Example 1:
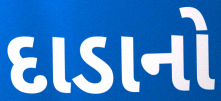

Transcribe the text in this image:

દાડાનો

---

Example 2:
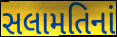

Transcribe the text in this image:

સલામતિનાં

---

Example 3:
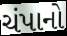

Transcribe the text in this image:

ચંપાનો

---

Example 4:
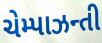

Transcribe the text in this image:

ચેમ્પાઝન્તી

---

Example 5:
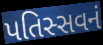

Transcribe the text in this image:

પતિસ્સવનં